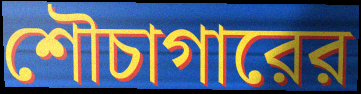
শৌচাগারের